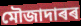
মৌজাদাৰৰ